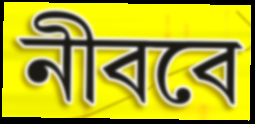
নীববে